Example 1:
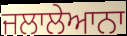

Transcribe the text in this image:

ਜਲਾਲੇਆਨਾ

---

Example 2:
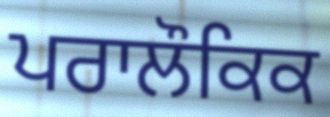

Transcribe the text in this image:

ਪਰਾਲੌਕਿਕ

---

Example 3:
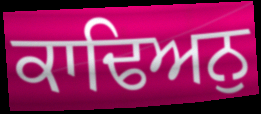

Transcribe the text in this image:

ਕਾਢਿਅਨੁ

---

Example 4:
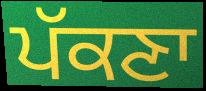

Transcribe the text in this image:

ਪੱਕਣਾ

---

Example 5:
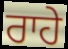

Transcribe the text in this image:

ਰਾਹੇ